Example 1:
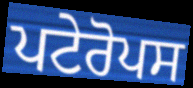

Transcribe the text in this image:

ਪਟੇਰੋਪਸ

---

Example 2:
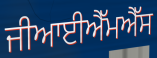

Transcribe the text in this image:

ਜੀਆਈਐੱਮਐੱਸ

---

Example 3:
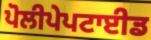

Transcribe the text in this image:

ਪੋਲੀਪੇਪਟਾਈਡ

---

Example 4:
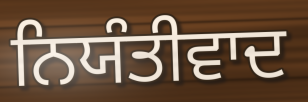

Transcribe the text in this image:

ਨਿਯੰਤੀਵਾਦ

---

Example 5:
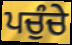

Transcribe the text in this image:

ਪਚੁੰਚੇ